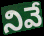
నివే